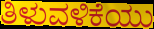
ತಿಳುವಳಿಕೆಯು